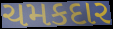
ચમકદાર